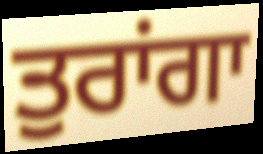
ਤੁਰਾਂਗਾ